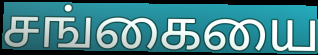
சங்கையை